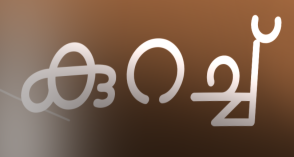
കുറച്ച്